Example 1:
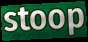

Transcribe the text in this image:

stoop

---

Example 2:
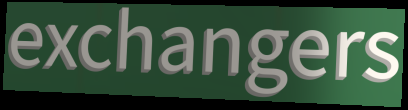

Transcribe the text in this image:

exchangers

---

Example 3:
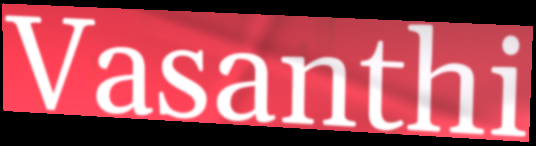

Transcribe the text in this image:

Vasanthi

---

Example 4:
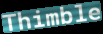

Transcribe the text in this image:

Thimble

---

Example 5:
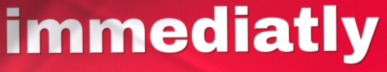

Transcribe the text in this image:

immediatly